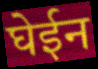
घेईन